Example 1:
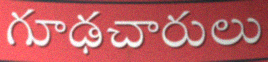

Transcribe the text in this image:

గూఢచారులు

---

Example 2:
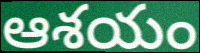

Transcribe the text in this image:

ఆశయం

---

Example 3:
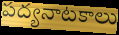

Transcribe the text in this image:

పద్యనాటకాలు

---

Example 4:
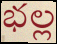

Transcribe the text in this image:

భల్ల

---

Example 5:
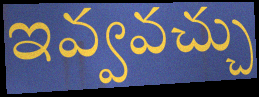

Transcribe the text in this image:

ఇవ్వవచ్చు